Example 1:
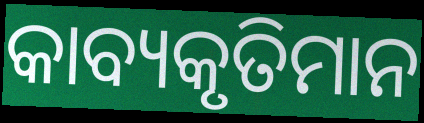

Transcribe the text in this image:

କାବ୍ୟକୃତିମାନ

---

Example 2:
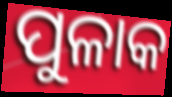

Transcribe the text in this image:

ପୁଳାକ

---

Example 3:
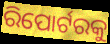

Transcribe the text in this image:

ରିପୋର୍ଟରକୁ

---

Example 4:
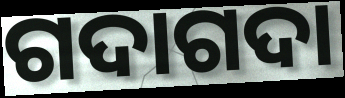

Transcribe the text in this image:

ଗଦାଗଦା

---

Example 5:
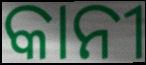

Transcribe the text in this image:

କାନୀ